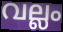
വല്ലം